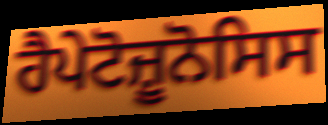
ਹੈਪੇਟੋਜ਼ੂਨੋਸਿਸ